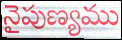
నైపుణ్యము